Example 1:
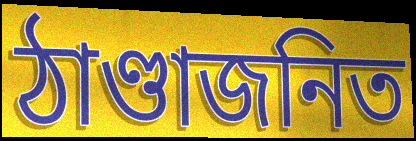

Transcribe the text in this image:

ঠাণ্ডাজনিত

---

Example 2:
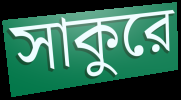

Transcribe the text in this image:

সাকুরে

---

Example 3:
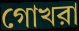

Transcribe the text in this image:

গোখরা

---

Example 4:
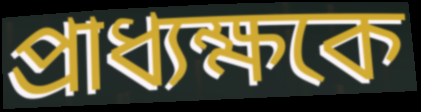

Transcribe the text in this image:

প্রাধ্যক্ষকে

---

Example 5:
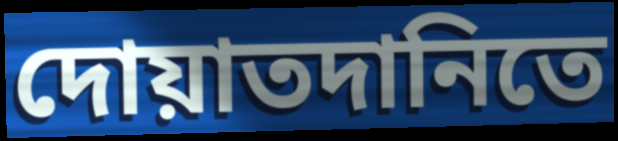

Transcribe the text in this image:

দোয়াতদানিতে